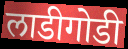
लाडीगोडी